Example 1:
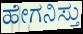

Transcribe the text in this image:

ಹೇಗನಿಸ್ತು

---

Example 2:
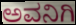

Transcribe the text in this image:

ಅವನಿಗಿ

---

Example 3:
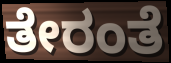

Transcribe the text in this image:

ತೇರಂತೆ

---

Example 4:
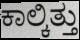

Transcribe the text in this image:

ಕಾಲ್ಕಿತ್ತು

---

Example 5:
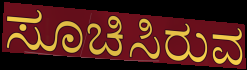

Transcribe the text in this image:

ಸೂಚಿಸಿರುವ